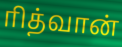
ரித்வான்